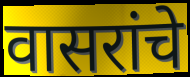
वासरांचे